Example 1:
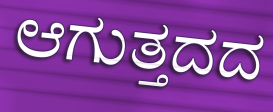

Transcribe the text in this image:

ಆಗುತ್ತದದ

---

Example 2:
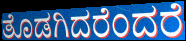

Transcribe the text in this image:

ತೊಡಗಿದರೆಂದರೆ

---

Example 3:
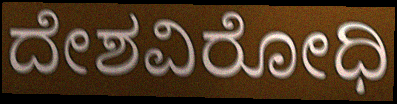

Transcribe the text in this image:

ದೇಶವಿರೋಧಿ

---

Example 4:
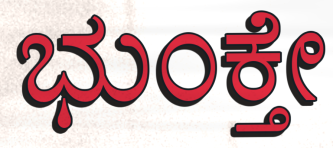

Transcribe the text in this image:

ಭುಂಕ್ತೇ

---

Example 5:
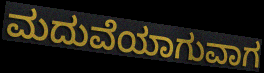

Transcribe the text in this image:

ಮದುವೆಯಾಗುವಾಗ